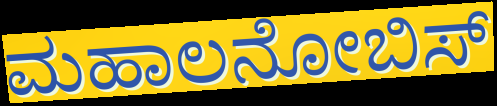
ಮಹಾಲನೋಬಿಸ್